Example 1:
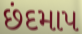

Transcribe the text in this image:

છંદમાપ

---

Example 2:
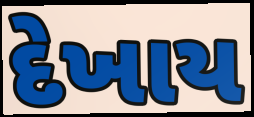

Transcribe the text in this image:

દેખાય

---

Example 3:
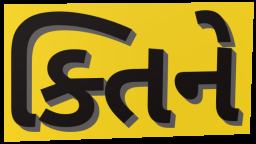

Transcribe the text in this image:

ક્તિને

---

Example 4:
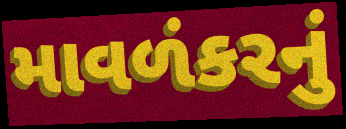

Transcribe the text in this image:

માવળંકરનું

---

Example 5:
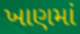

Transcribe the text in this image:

ખાણમાં